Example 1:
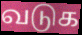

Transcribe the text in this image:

வடுக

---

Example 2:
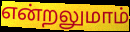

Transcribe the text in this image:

என்றலுமாம்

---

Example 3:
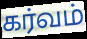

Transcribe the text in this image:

கர்வம்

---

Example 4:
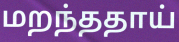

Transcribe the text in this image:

மறந்ததாய்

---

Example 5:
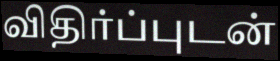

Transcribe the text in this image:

விதிர்ப்புடன்